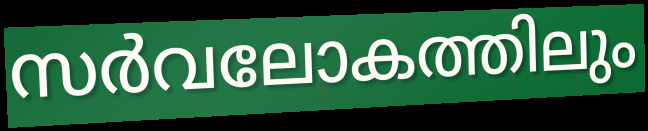
സർവലോകത്തിലും